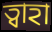
ত্বাহা